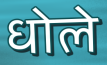
धोले